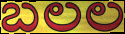
బలల